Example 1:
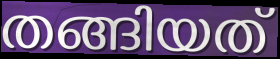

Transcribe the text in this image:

തങ്ങിയത്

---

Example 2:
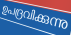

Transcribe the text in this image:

ഉപദ്രവിക്കുന്നു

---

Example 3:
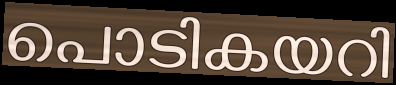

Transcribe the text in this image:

പൊടികയറി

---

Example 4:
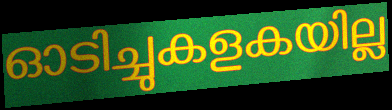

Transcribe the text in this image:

ഓടിച്ചുകളകയില്ല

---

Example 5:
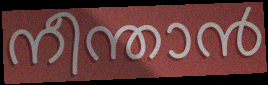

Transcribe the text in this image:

നീന്താൻ